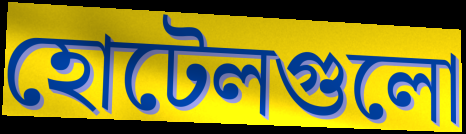
হোটেলগুলো